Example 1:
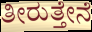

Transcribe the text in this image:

ತೀರುತ್ತೇನೆ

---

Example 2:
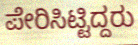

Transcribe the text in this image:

ಪೇರಿಸಿಟ್ಟಿದ್ದರು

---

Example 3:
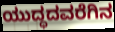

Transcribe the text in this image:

ಯುದ್ಧದವರೆಗಿನ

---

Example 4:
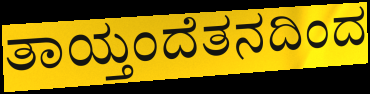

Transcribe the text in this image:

ತಾಯ್ತಂದೆತನದಿಂದ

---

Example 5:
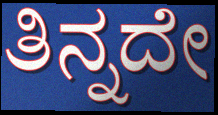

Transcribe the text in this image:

ತಿನ್ನದೇ